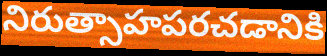
నిరుత్సాహపరచడానికి